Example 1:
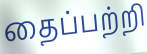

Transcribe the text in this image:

தைப்பற்றி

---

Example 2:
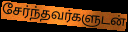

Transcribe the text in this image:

சேர்ந்தவர்களுடன்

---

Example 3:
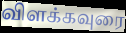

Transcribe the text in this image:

விளக்கவுரை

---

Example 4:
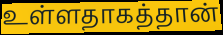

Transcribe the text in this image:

உள்ளதாகத்தான்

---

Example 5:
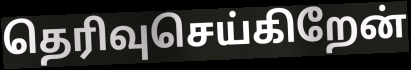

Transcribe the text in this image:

தெரிவுசெய்கிறேன்